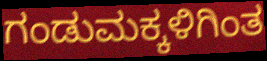
ಗಂಡುಮಕ್ಕಳಿಗಿಂತ